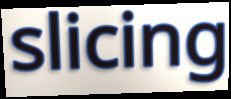
slicing